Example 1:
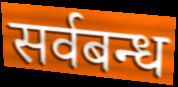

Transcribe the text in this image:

सर्वबन्ध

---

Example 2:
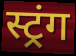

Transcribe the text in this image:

स्ट्रंग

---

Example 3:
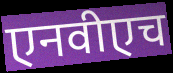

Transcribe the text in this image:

एनवीएच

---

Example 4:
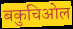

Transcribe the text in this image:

बकुचिओल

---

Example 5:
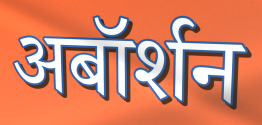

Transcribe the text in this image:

अबॉर्शन